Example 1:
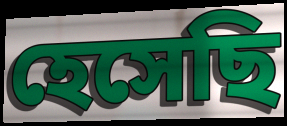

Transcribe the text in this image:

হেসেছি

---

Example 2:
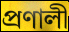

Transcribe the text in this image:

প্রণালী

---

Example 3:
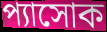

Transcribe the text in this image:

প্যাসোক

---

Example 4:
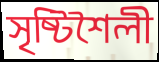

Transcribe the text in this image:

সৃষ্টিশৈলী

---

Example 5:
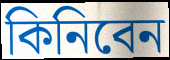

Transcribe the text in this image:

কিনিবেন